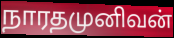
நாரதமுனிவன்